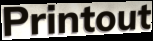
Printout